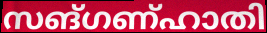
സങ്ഗണ്ഹാതി